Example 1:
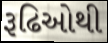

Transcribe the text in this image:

રૂઢિઓથી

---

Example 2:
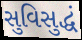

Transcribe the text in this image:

સુવિસુદ્ધં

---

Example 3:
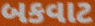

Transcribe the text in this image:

બકવાટ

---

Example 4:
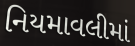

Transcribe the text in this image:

નિયમાવલીમાં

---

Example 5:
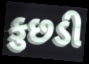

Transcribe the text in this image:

કુછડી